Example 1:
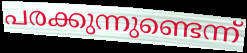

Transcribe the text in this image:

പരക്കുന്നുണ്ടെന്ന്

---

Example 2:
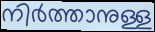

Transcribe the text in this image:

നിർത്താനുള്ള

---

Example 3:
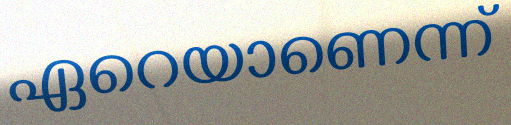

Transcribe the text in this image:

ഏറെയാണെന്ന്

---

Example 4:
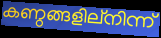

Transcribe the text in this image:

കണ്ഠങ്ങളില്നിന്ന്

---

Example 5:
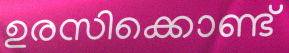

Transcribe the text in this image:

ഉരസിക്കൊണ്ട്